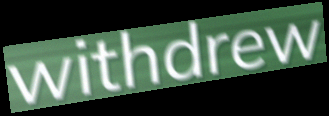
withdrew